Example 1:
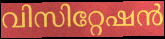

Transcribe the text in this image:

വിസിറ്റേഷൻ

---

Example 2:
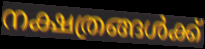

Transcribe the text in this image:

നക്ഷത്രങ്ങൾക്ക്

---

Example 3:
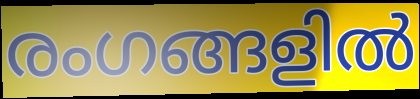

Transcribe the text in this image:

രംഗങ്ങളിൽ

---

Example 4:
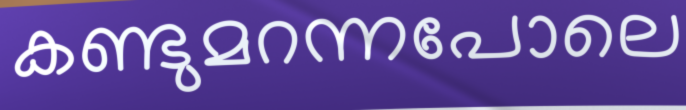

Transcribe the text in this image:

കണ്ടുമറന്നപോലെ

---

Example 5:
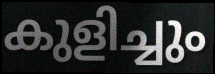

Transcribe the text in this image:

കുളിച്ചും